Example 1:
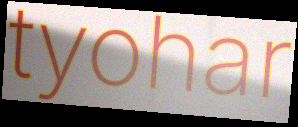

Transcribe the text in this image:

tyohar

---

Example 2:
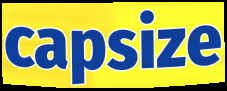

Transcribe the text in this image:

capsize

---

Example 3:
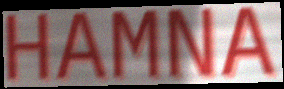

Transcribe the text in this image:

HAMNA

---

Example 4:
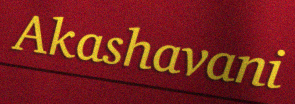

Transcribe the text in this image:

Akashavani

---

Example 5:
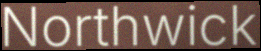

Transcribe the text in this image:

Northwick